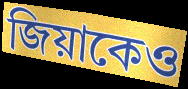
জিয়াকেও